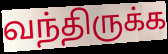
வந்திருக்க